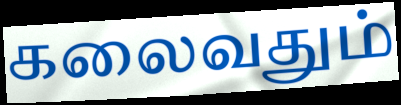
கலைவதும்